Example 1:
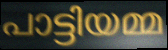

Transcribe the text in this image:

പാട്ടിയമ്മ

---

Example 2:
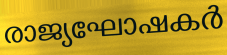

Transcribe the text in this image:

രാജ്യഘോഷകർ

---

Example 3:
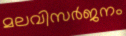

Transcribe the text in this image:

മലവിസർജനം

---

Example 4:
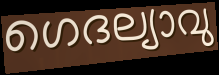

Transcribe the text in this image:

ഗെദല്യാവു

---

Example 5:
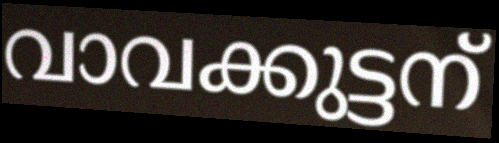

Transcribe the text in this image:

വാവക്കുട്ടന്